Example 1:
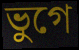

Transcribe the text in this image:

ভুগে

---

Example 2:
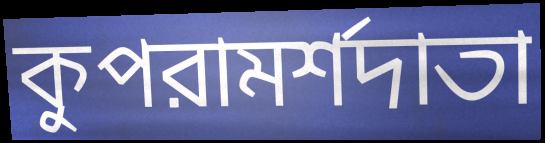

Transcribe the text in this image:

কুপরামর্শদাতা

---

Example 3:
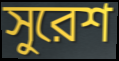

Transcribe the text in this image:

সুরেশ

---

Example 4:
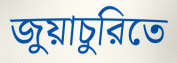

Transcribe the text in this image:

জুয়াচুরিতে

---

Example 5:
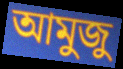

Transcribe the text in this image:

আমুজু